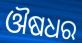
ଔଷଧର